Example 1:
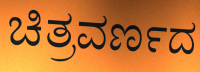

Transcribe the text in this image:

ಚಿತ್ರವರ್ಣದ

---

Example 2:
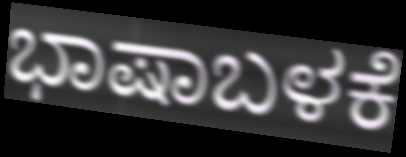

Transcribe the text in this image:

ಭಾಷಾಬಳಕೆ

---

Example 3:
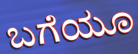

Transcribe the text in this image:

ಬಗೆಯೂ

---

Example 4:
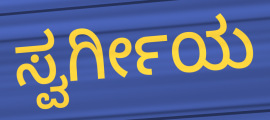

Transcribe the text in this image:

ಸ್ವರ್ಗೀಯ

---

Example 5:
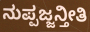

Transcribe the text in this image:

ನುಪ್ಪಜ್ಜನ್ತೀತಿ